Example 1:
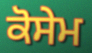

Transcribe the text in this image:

ਕੋਸੇਮ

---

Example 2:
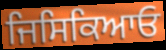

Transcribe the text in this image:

ਜਿਸਿਕਿਆਓ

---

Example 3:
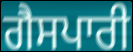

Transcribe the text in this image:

ਗੈਸਪਾਰੀ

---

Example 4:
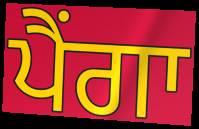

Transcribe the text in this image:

ਪੈਂਗਾ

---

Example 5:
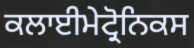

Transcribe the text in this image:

ਕਲਾਈਮੇਟ੍ਰੋਨਿਕਸ